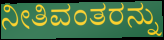
ನೀತಿವಂತರನ್ನು